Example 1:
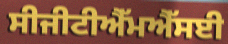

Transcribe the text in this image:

ਸੀਜੀਟੀਐੱਮਐੱਸਈ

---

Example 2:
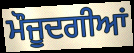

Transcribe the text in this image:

ਮੌਜੂਦਗੀਆਂ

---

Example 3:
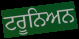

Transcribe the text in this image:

ਟਰੂਨਿਅਨ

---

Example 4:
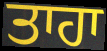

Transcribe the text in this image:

ਤਾਹਾ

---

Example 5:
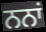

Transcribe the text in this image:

ਨਨਾਂ